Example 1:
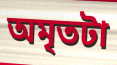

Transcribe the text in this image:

অমৃতটা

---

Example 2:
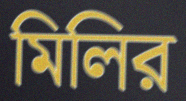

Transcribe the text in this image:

মিলির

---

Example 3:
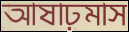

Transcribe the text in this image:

আষাঢ়মাস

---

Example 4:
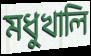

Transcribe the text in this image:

মধুখালি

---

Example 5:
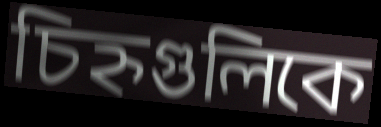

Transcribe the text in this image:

চিহ্নগুলিকে